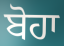
ਬੋਹਾ